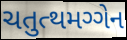
ચતુત્થમગ્ગેન